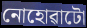
নোহোৱাটো